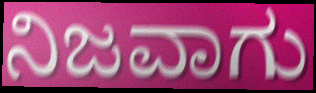
ನಿಜವಾಗು